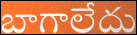
బాగాలేదు